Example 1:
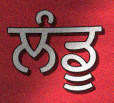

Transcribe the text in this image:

ਲੰਡੂ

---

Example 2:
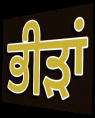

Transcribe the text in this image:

ਭੀੜਾਂ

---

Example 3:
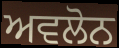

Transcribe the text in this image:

ਅਵਲੋਨ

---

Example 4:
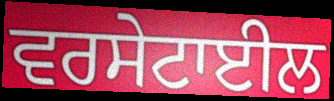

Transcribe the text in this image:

ਵਰਸੇਟਾਈਲ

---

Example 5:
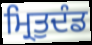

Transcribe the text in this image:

ਮ੍ਰਿਤੁਦੰਡ